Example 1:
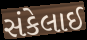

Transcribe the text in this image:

સંકેલાઈ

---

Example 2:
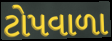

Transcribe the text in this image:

ટોપવાળા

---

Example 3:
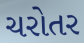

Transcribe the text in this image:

ચરોતર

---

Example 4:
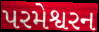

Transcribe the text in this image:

પરમેશ્વરન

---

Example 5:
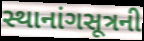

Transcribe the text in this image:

સ્થાનાંગસૂત્રની